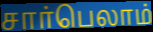
சார்பெலாம்